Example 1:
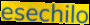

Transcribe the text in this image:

esechilo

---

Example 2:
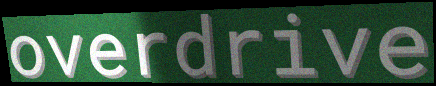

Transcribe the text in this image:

overdrive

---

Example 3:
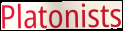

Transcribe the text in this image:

Platonists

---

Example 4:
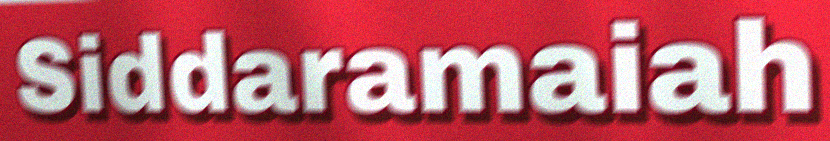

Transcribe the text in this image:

Siddaramaiah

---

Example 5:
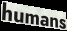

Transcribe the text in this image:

humans